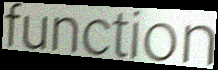
function